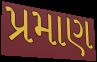
પ્રમાણ